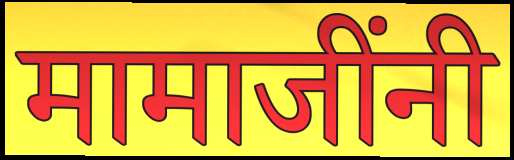
मामाजींनी